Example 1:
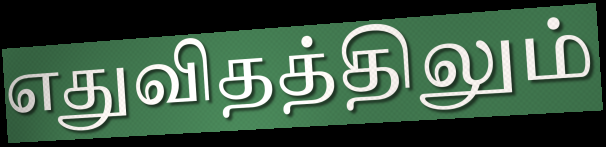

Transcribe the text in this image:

எதுவிதத்திலும்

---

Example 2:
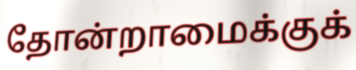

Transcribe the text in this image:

தோன்றாமைக்குக்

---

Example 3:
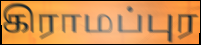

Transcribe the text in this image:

கிராமப்புர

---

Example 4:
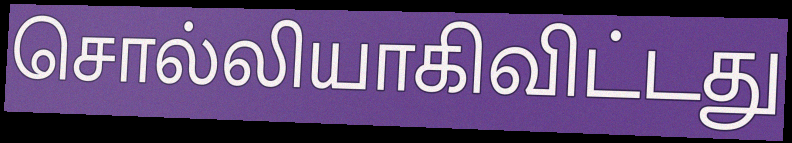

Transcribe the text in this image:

சொல்லியாகிவிட்டது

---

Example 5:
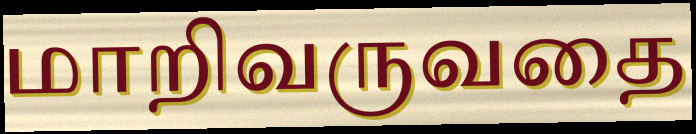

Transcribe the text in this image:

மாறிவருவதை